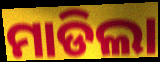
ମାଡିଲା